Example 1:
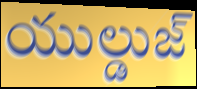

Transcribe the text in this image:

యుల్డుజ్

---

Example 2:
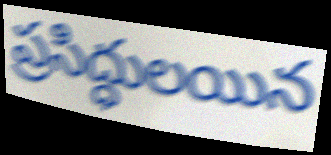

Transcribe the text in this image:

ప్రసిద్ధులయిన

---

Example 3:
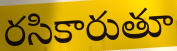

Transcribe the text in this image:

రసికారుతూ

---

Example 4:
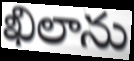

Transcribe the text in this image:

ఖిలాను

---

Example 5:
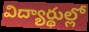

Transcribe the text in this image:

విద్యార్థుల్లో